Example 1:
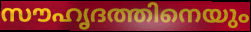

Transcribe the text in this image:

സൗഹൃദത്തിനെയും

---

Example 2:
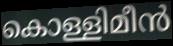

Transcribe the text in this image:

കൊള്ളിമീൻ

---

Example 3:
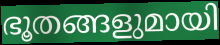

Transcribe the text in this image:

ഭൂതങ്ങളുമായി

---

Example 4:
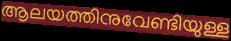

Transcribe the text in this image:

ആലയത്തിനുവേണ്ടിയുള്ള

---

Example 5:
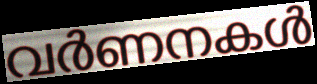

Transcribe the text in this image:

വർണനകൾ